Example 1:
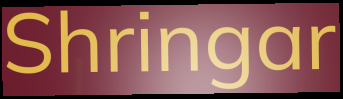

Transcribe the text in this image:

Shringar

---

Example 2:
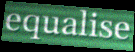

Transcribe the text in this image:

equalise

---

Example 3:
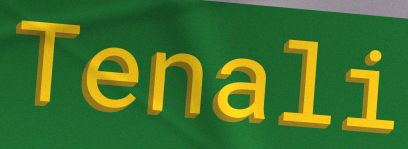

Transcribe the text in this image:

Tenali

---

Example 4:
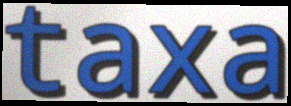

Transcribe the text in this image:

taxa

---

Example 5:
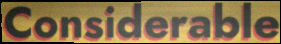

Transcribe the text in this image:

Considerable